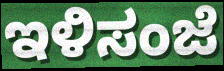
ಇಳಿಸಂಜೆ